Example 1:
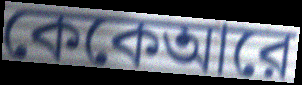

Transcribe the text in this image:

কেকেআরে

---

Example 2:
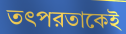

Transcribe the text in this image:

তৎপরতাকেই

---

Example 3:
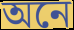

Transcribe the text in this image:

অনে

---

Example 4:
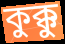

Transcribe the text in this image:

কুক্কু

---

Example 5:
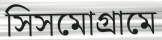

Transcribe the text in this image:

সিসমোগ্রামে